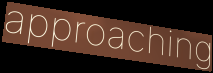
approaching